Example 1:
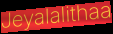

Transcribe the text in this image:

Jeyalalithaa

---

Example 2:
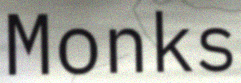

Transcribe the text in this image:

Monks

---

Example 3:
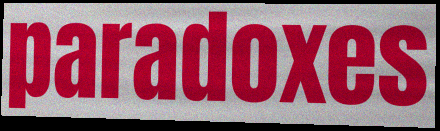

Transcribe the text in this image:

paradoxes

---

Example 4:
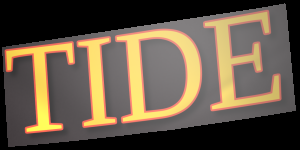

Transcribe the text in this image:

TIDE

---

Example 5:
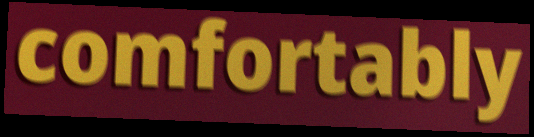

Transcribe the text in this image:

comfortably